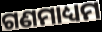
ଗଣମାଧ୍ୟମ